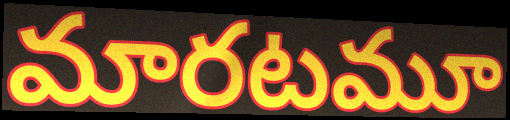
మారటమూ